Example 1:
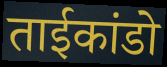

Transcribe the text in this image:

ताईकांडो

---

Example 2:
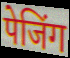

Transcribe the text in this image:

पेजिंग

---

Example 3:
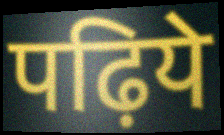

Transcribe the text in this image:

पढ़िये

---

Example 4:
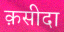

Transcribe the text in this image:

क़सीदा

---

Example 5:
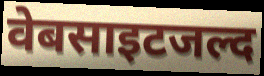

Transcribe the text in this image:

वेबसाइटजल्द